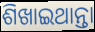
ଶିଖାଇଥାନ୍ତା